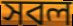
সবল